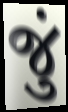
જું